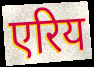
एरिय